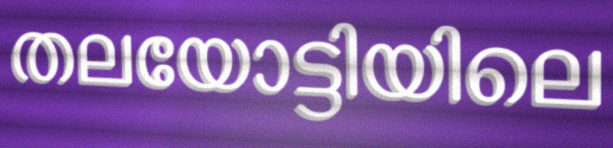
തലയോട്ടിയിലെ